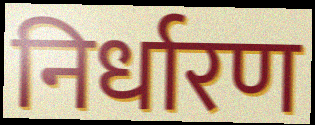
निर्धारण